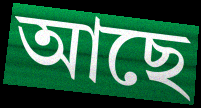
আছে